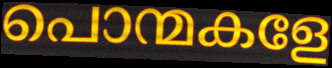
പൊന്മകളേ